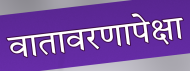
वातावरणापेक्षा